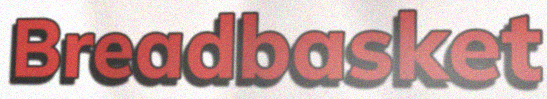
Breadbasket